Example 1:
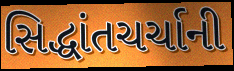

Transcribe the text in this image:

સિદ્ધાંતચર્ચાની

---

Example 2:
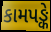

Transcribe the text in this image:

કામપઙ્કે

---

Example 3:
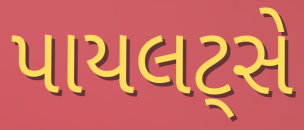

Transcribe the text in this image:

પાયલટ્સે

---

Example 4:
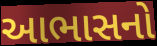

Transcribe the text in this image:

આભાસનો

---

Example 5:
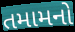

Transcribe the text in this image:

તમામનો